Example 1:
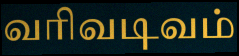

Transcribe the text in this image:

வரிவடிவம்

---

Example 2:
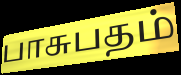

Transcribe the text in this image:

பாசுபதம்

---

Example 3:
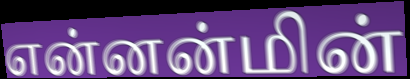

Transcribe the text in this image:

என்னன்மின்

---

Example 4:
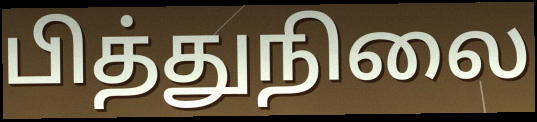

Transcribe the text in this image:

பித்துநிலை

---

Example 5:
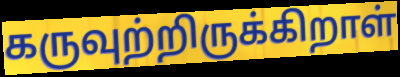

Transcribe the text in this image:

கருவுற்றிருக்கிறாள்